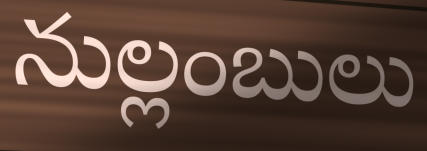
నుల్లంబులు